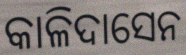
କାଳିଦାସେନ